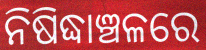
ନିଷିଦ୍ଧାଞ୍ଚଳରେ